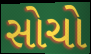
સોચો